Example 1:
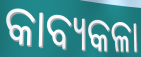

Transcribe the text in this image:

କାବ୍ୟକଳା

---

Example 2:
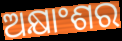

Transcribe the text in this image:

ଅକ୍ଷାଂଶର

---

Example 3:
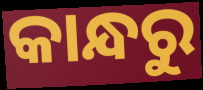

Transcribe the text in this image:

କାନ୍ଧରୁ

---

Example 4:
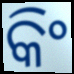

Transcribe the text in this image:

କିଂ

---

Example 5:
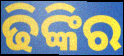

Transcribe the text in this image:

ଢିଙ୍କିର